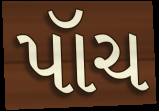
પૉચ